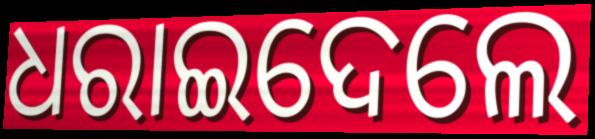
ଧରାଇଦେଲେ